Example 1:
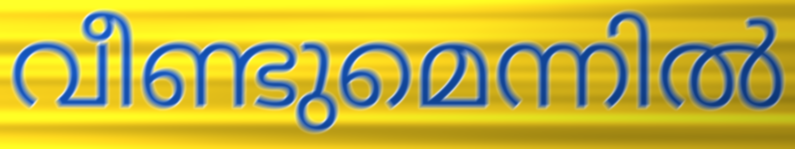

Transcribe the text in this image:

വീണ്ടുമെന്നിൽ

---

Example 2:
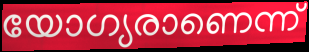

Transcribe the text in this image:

യോഗ്യരാണെന്ന്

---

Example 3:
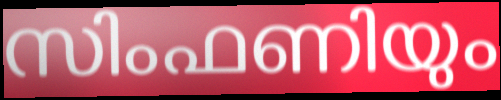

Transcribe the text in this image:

സിംഫണിയും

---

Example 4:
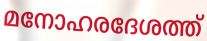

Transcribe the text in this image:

മനോഹരദേശത്ത്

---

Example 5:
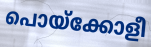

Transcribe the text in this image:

പൊയ്ക്കോളീ